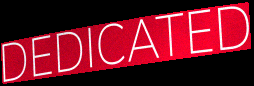
DEDICATED